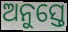
ଅନୁସ୍ତେ